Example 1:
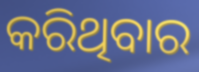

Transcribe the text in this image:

କରିଥିବାର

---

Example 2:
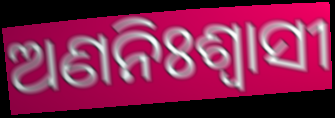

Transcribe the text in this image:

ଅଣନିଃଶ୍ଵାସୀ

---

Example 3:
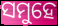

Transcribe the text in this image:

ସମୁହେ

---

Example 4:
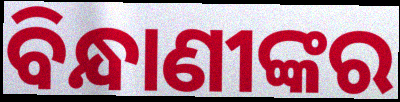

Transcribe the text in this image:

ବିନ୍ଧାଣୀଙ୍କର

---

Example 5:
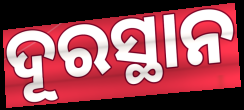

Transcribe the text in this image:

ଦୂରସ୍ଥାନ